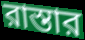
রাস্তার